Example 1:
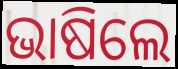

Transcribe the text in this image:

ଭାଷିଲେ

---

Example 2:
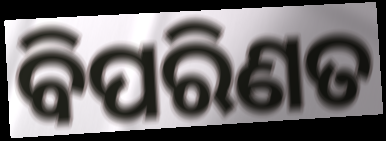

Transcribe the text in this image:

ବିପରିଣତ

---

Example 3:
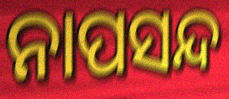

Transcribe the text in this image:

ନାପସନ୍ଦ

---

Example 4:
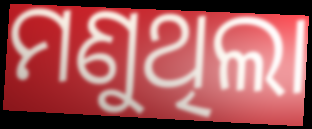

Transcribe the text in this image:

ମଣୁଥିଲା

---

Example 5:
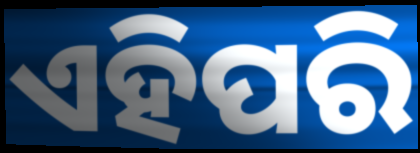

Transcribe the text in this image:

ଏହିପରି